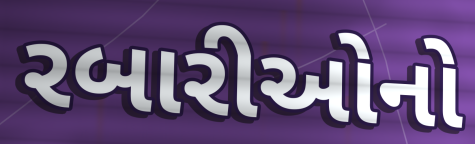
રબારીઓનો